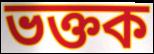
ভক্তক